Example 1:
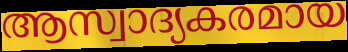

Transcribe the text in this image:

ആസ്വാദ്യകരമായ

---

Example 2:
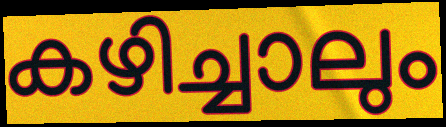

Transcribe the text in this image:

കഴിച്ചാലും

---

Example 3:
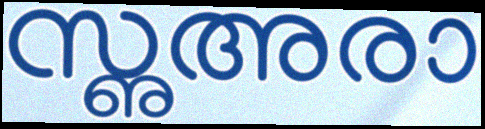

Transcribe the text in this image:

സൢഅരാ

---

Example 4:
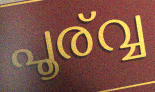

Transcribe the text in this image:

പൂര്വ്വ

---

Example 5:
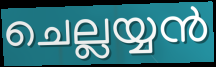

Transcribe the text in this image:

ചെല്ലയ്യൻ